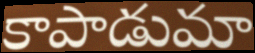
కాపాడుమా